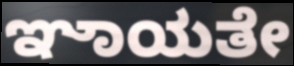
ಞಾಯತೇ